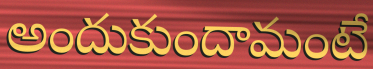
అందుకుందామంటే